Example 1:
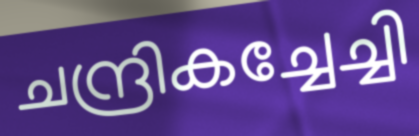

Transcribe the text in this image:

ചന്ദ്രികച്ചേച്ചി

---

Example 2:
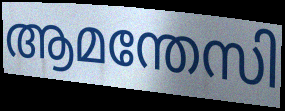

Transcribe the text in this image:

ആമന്തേസി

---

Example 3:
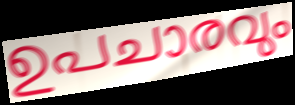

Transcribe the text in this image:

ഉപചാരവും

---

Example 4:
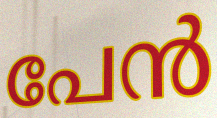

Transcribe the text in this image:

പേൻ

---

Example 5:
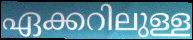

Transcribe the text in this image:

ഏക്കറിലുള്ള